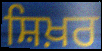
ਸ਼ਿਖ਼ਰ